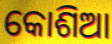
କୋଶିଆ